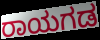
ರಾಯಗಡ